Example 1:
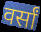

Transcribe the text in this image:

वर्सां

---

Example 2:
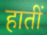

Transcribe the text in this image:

हातीं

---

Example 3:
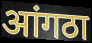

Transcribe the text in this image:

आंगठा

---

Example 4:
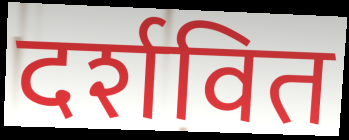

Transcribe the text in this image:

दर्शवित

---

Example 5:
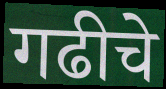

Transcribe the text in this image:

गढीचे